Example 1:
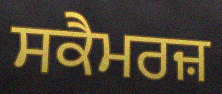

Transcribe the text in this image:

ਸਕੈਮਰਜ਼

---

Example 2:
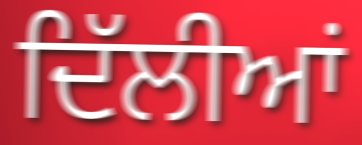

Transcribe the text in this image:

ਦਿੱਲੀਆਂ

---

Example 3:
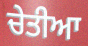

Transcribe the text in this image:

ਚੇਤੀਆ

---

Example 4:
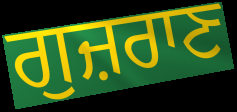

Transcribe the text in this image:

ਗੁਜ਼ਰਾਣ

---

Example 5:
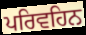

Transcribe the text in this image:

ਪਰਿਵਹਿਨ